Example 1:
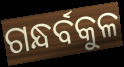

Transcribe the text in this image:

ଗନ୍ଧର୍ବକୁଳ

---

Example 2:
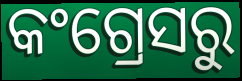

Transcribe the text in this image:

କଂଗ୍ରେସରୁ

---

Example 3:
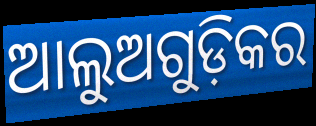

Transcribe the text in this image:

ଆଲୁଅଗୁଡ଼ିକର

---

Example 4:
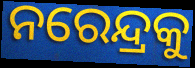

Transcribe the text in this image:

ନରେନ୍ଦ୍ରକୁ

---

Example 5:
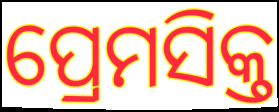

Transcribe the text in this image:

ପ୍ରେମସିକ୍ତ